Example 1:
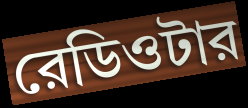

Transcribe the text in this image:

রেডিওটার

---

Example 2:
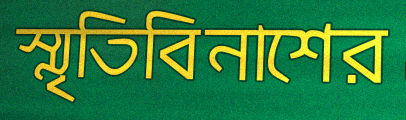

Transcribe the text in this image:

স্মৃতিবিনাশের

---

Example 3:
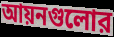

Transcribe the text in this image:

আয়নগুলোর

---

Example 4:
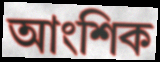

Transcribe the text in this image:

আংশিক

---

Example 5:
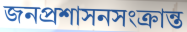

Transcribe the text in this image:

জনপ্রশাসনসংক্রান্ত